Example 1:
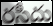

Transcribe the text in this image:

రసీదు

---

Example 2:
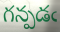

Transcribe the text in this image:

గన్పడఁ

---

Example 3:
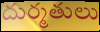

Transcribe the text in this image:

దుర్మతులు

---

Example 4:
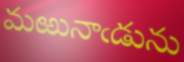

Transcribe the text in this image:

మఱునాఁడును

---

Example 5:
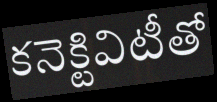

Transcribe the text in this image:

కనెక్టివిటీతో